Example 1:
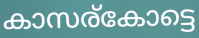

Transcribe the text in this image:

കാസര്കോട്ടെ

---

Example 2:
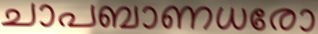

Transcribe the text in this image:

ചാപബാണധരോ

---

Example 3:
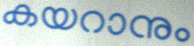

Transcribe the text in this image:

കയറാനും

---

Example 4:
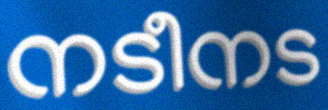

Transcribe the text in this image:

നടീനട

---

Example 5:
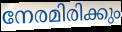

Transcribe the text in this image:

നേരമിരിക്കും